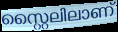
സ്റ്റൈലിലാണ്